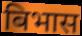
बिभास